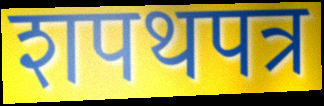
शपथपत्र